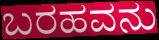
ಬರಹವನು